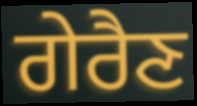
ਗੇਰੈਣ